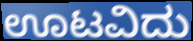
ಊಟವಿದು